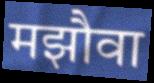
मझौवा